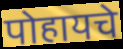
पोहायचे